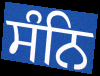
ਸੰਨਿ